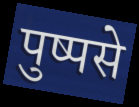
पुष्पसे